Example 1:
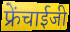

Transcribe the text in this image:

फ्रेंचाईजी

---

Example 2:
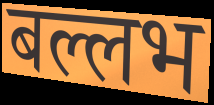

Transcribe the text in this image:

बल्लभ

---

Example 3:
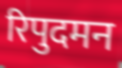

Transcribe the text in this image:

रिपुदमन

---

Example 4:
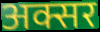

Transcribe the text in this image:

अक्सर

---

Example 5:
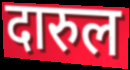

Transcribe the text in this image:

दारुल